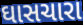
ઘાસચારા